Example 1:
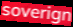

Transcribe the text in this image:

soverign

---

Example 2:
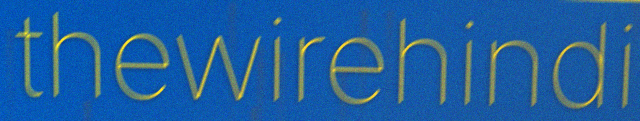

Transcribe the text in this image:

thewirehindi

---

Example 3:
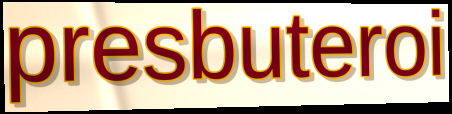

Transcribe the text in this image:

presbuteroi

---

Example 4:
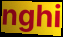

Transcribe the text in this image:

nghi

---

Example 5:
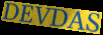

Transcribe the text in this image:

DEVDAS